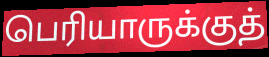
பெரியாருக்குத்